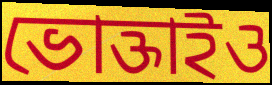
ভোক্তাইও